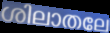
ശിലാതലേ